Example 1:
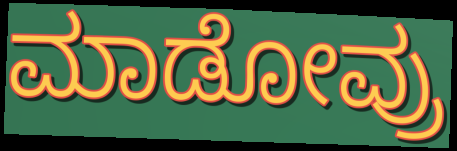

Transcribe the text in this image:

ಮಾಡೋವ್ರು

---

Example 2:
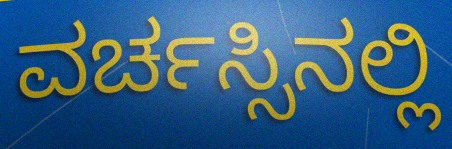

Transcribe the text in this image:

ವರ್ಚಸ್ಸಿನಲ್ಲಿ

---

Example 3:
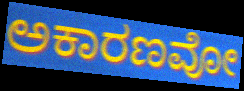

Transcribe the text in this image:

ಅಕಾರಣವೋ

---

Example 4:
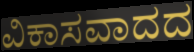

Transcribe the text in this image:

ವಿಕಾಸವಾದದ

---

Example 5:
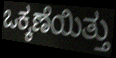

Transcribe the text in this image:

ಒಕ್ಕಣೆಯಿತ್ತು